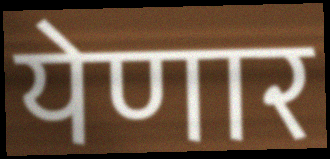
येणार